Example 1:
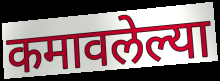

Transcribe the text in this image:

कमावलेल्या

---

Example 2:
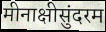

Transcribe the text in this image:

मीनाक्षीसुंदरम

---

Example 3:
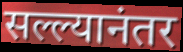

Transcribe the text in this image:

सल्ल्यानंतर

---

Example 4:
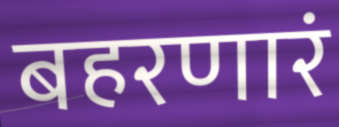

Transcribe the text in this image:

बहरणारं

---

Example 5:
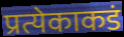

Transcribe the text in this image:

प्रत्येकाकडं